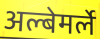
अल्बेमर्ले